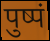
पुष्पं